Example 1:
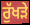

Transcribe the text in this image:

ਰੁੱਖੜੇ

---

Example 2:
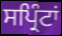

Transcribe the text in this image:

ਸਪ੍ਰਿੰਟਾਂ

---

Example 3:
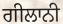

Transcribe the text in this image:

ਗੀਲਾਨੀ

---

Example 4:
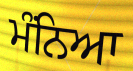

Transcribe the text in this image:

ਮੰਂਨਿਆ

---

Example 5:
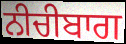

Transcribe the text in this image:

ਨੀਚੀਬਾਗ